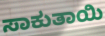
ಸಾಕುತಾಯಿ